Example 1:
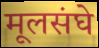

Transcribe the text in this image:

मूलसंघे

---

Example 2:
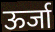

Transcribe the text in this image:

ऊर्जा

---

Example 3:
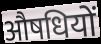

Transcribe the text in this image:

औषधियों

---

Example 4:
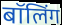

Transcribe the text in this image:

बॉलिंग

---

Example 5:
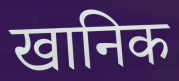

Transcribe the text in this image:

खानिक